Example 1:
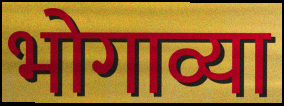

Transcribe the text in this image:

भोगाव्या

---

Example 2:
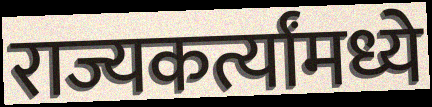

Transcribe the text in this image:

राज्यकर्त्यांमध्ये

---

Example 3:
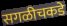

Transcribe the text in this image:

सगळीचकडे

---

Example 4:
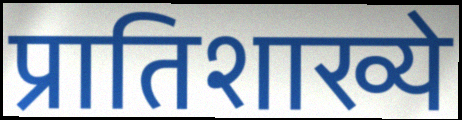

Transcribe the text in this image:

प्रातिशाख्ये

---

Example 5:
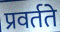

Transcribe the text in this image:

प्रवर्तते